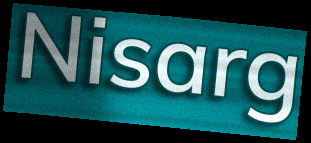
Nisarg